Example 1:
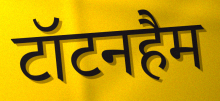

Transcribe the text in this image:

टॉटनहैम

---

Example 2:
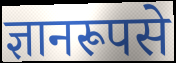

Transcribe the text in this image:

ज्ञानरूपसे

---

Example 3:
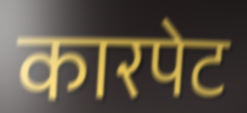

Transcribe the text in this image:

कारपेट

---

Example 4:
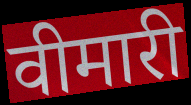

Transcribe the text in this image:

वीमारी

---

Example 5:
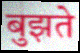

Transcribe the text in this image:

बुझते